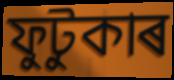
ফুটুকাৰ